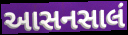
આસનસાલં